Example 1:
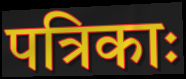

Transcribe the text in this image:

पत्रिकाः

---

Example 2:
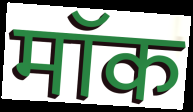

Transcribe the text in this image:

मॉक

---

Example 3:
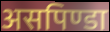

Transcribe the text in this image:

असपिण्डा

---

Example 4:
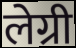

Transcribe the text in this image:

लेग्री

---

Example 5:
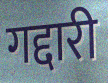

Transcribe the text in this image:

गद्दारी